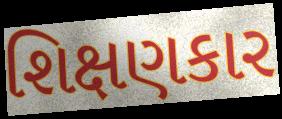
શિક્ષણકાર